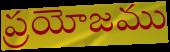
ప్రయోజము